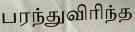
பரந்துவிரிந்த